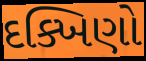
દક્ખિણો